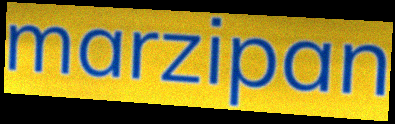
marzipan